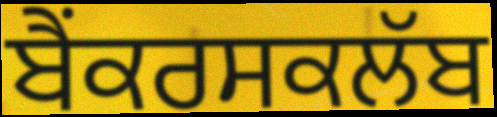
ਬੈਂਕਰਸਕਲੱਬ